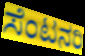
ಸೆಂಟನರಿ